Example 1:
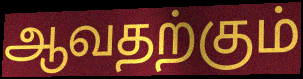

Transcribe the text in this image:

ஆவதற்கும்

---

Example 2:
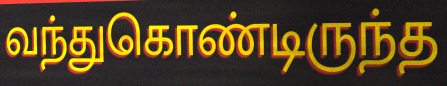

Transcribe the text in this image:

வந்துகொண்டிருந்த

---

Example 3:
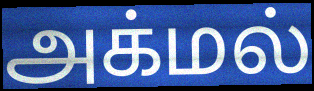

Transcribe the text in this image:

அக்மல்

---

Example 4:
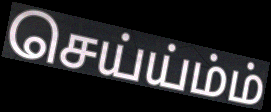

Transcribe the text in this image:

செய்ய்ம்ம்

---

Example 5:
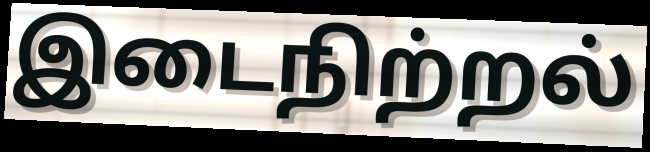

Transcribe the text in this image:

இடைநிற்றல்